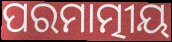
ପରମାତ୍ମୀୟ